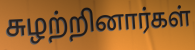
சுழற்றினார்கள்